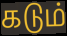
கடும்